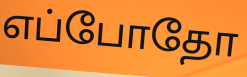
எப்போதோ